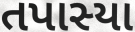
તપાસ્યા